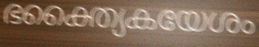
ഭക്ത്യൈകയേശം